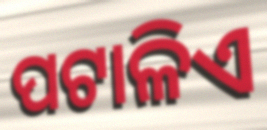
ପଟାଳିଏ